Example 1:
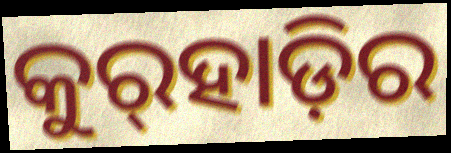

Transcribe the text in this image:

କୁର୍‍ହାଡ଼ିର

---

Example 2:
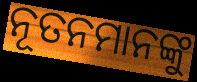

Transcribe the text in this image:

ନୂତନମାନଙ୍କୁ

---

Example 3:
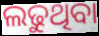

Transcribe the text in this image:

ଲଢୁଥିବା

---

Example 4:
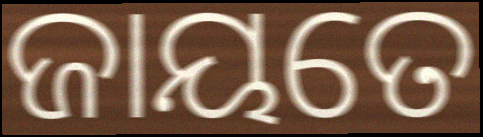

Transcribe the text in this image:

ଜାୟତେ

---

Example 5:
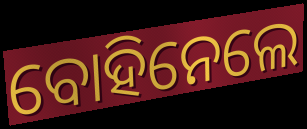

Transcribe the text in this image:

ବୋହିନେଲେ